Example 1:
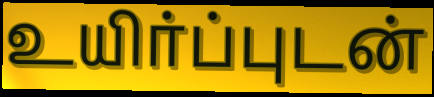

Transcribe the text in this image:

உயிர்ப்புடன்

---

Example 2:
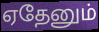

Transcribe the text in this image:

ஏதேனும்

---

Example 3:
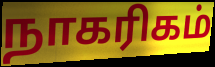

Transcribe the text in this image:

நாகரிகம்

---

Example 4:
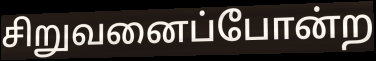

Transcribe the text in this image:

சிறுவனைப்போன்ற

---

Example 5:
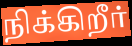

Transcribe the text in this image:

நிக்கிறீர்